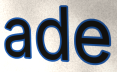
ade